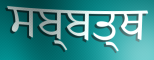
ਸਬ੍ਬਤ੍ਥ